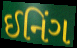
ઈનિંગ